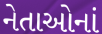
નેતાઓનાં